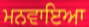
ਮਨਵਾਇਆ